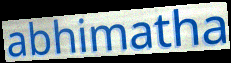
abhimatha